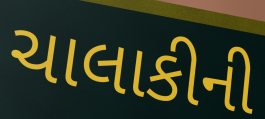
ચાલાકીની